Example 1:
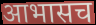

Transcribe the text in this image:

आभासच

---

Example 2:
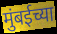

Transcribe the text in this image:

मुंबईच्या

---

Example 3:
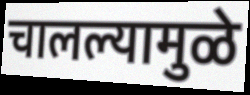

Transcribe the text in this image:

चालल्यामुळे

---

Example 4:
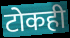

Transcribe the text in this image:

टोकही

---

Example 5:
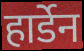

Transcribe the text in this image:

हार्डेन